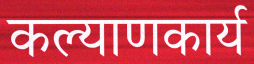
कल्याणकार्य